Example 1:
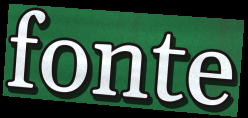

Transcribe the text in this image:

fonte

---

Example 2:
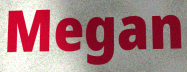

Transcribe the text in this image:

Megan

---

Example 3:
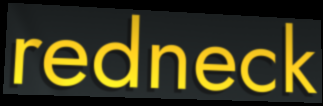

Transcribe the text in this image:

redneck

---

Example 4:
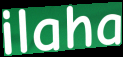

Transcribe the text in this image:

ilaha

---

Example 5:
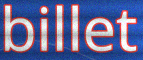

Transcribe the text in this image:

billet